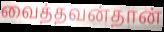
வைத்தவன்தான்